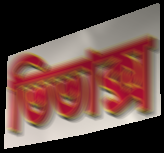
ভিভাক্স